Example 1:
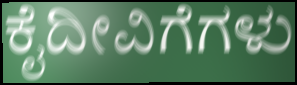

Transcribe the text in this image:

ಕೈದೀವಿಗೆಗಳು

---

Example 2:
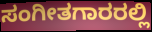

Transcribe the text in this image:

ಸಂಗೀತಗಾರರಲ್ಲಿ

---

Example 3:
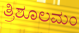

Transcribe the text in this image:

ತ್ರಿಶೂಲಮಂ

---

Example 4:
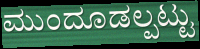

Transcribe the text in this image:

ಮುಂದೂಡಲ್ಪಟ್ಟು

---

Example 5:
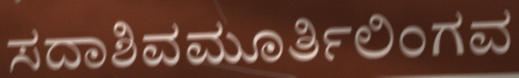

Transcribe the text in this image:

ಸದಾಶಿವಮೂರ್ತಿಲಿಂಗವ